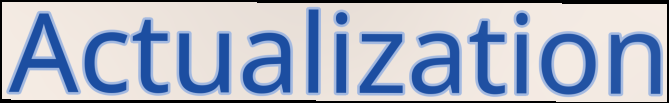
Actualization